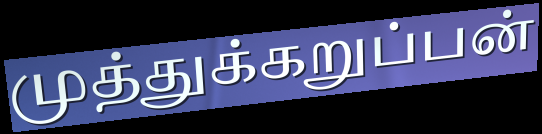
முத்துக்கறுப்பன்